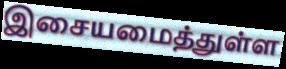
இசையமைத்துள்ள